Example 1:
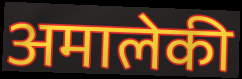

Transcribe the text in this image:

अमालेकी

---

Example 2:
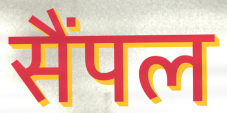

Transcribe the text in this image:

सैंपल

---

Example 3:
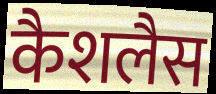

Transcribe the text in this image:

कैशलैस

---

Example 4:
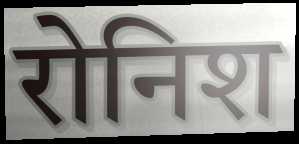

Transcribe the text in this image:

रोनिश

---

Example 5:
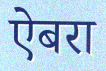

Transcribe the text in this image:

ऐबरा